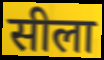
सीला